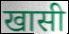
खासी